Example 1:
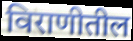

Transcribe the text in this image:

विराणीतील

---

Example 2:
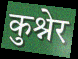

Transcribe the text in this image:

कुश्नेर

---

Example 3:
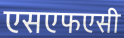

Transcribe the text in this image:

एसएफएसी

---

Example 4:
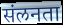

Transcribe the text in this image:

संलनता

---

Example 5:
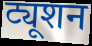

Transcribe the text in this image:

ट्यूशन